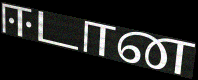
ஈடான